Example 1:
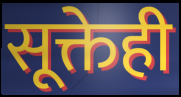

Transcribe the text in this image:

सूक्तेही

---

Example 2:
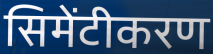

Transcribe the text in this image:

सिमेंटीकरण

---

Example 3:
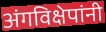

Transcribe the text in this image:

अंगविक्षेपांनी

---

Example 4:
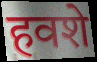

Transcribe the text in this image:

हवशे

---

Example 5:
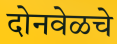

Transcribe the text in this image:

दोनवेळचे